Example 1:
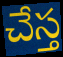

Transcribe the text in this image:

చేస్త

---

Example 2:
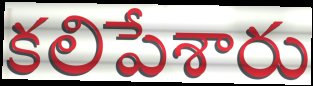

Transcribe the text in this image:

కలిపేశారు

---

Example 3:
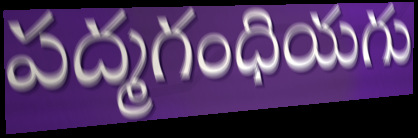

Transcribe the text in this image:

పద్మగంధియగు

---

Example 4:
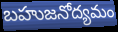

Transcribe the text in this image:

బహుజనోద్యమం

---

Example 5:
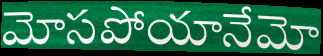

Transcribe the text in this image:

మోసపోయానేమో